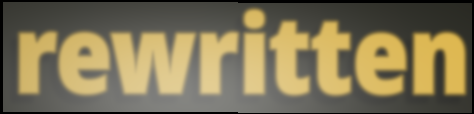
rewritten